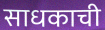
साधकाची